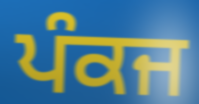
ਪੰਕਜ